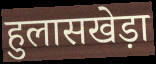
हुलासखेड़ा